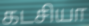
கடசியா